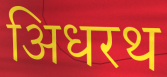
अिधरथ